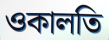
ওকালতি